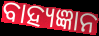
ବାହ୍ୟଜ୍ଞାନ